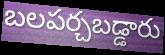
బలపర్చబడ్డారు